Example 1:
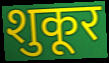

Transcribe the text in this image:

शुकूर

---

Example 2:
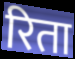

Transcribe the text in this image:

रिता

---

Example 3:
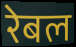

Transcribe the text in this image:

रेबल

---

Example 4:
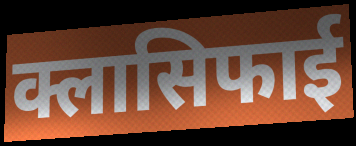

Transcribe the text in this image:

क्लासिफाई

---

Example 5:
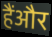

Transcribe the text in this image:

हैंऔर